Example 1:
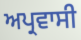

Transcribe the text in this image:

ਅਪ੍ਰਵਾਸੀ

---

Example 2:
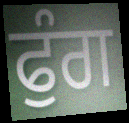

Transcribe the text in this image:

ਫੁੰਗ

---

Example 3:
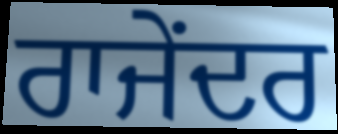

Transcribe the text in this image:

ਰਾਜੇਂਦਰ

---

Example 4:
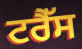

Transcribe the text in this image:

ਟਰੈੱਸ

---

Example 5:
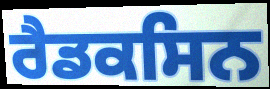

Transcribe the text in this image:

ਰੈਡਕਸਿਨ